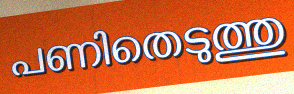
പണിതെടുത്തു